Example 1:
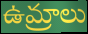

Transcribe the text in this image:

ఉమ్రాలు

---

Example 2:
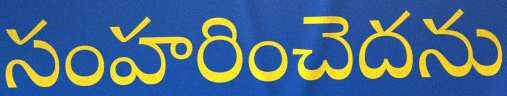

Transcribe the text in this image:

సంహరించెదను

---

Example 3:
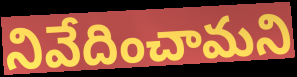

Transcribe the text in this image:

నివేదించామని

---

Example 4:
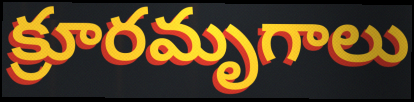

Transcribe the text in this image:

క్రూరమృగాలు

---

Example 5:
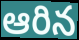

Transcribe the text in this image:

ఆరిన